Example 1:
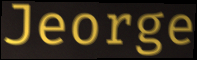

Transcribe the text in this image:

Jeorge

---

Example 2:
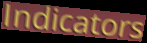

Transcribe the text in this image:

Indicators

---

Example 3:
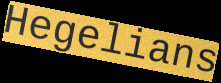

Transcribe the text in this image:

Hegelians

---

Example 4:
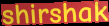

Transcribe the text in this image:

shirshak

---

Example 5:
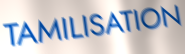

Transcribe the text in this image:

TAMILISATION